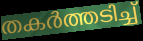
തകർത്തടിച്ച്